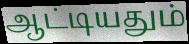
ஆட்டியதும்